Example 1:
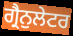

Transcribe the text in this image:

ਗ੍ਰੈਨੁਲੇਟਰ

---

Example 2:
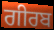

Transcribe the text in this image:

ਗੀਰਬ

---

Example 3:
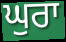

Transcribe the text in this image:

ਘੁਰਾ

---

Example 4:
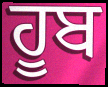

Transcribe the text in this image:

ਹੂਬ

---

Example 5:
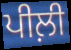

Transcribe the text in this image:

ਪੀਲ਼ੀ